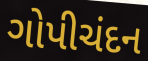
ગોપીચંદન